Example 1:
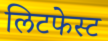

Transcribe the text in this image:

लिटफेस्ट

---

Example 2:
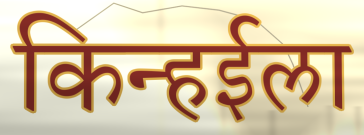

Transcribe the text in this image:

किन्हईला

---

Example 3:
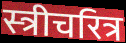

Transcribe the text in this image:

स्त्रीचरित्र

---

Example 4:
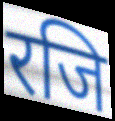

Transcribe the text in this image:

रजि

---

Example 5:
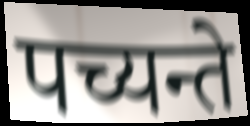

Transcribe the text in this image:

पच्यन्ते